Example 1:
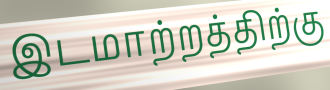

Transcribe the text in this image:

இடமாற்றத்திற்கு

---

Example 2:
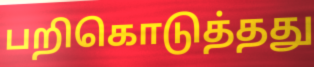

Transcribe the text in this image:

பறிகொடுத்தது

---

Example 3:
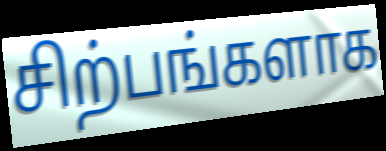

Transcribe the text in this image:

சிற்பங்களாக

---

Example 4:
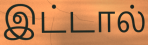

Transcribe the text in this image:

இட்டால்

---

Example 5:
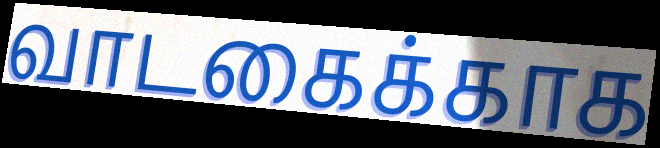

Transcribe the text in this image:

வாடகைக்காக